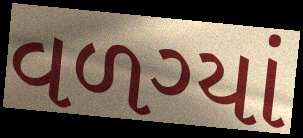
વળગ્યાં